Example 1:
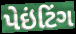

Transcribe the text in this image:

પેઇંટિંગ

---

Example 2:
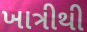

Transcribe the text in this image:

ખાત્રીથી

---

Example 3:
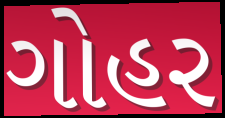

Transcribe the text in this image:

ગોહર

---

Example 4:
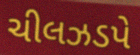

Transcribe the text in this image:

ચીલઝડપે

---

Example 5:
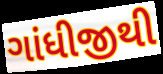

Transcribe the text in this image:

ગાંધીજીથી